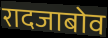
रादजाबोव